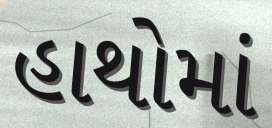
હાથોમાં